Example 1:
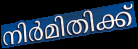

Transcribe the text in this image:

നിർമിതിക്ക്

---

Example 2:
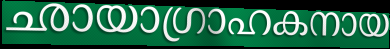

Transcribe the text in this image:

ഛായാഗ്രാഹകനായ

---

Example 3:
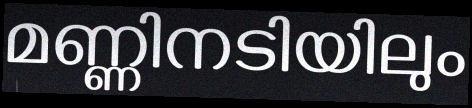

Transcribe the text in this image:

മണ്ണിനടിയിലും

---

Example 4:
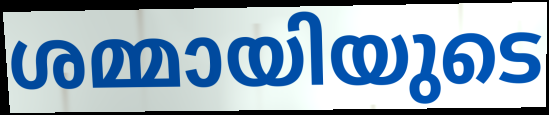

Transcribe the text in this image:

ശമ്മായിയുടെ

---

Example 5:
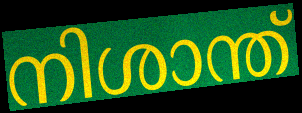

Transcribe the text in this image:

നിശാന്ത്